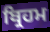
ਬ੍ਰਿਹਮ